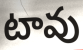
టావు